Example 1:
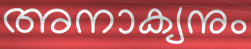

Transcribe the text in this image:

അനാക്യനും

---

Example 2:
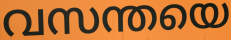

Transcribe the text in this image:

വസന്തയെ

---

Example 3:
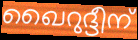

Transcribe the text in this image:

ഖൈറുദ്ദീന്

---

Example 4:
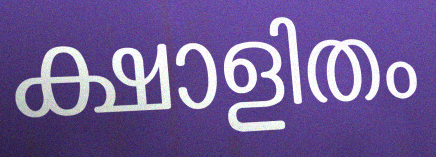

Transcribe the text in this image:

ക്ഷാളിതം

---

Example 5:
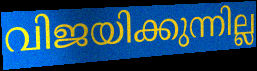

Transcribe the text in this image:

വിജയിക്കുന്നില്ല